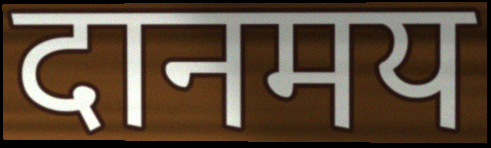
दानमय